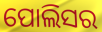
ପୋଲିସର